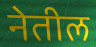
नेतील